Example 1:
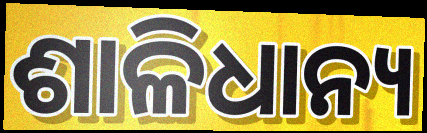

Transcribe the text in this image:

ଶାଳିଧାନ୍ୟ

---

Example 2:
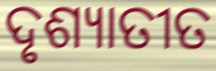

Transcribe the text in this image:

ଦୃଶ୍ୟାତୀତ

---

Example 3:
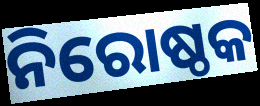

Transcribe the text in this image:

ନିରୋଷ୍ଠକ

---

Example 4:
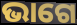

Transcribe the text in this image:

ଭାଗେ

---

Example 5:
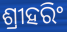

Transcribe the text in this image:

ଶ୍ରୀହରିଂ